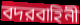
বদরবাহিনী